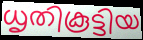
ധൃതികൂട്ടിയ